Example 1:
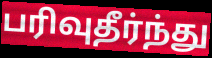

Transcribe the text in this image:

பரிவுதீர்ந்து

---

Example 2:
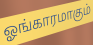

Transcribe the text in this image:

ஓங்காரமாகும்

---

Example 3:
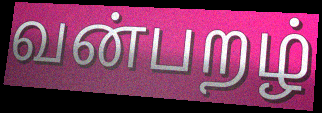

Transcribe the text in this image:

வன்பறழ்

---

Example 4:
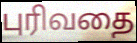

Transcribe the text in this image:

புரிவதை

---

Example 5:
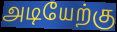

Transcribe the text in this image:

அடியேற்கு